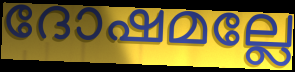
ദോഷമല്ലേ